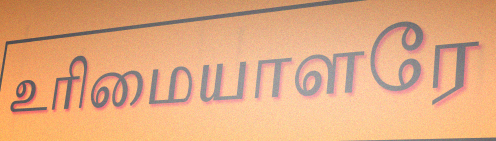
உரிமையாளரே